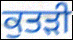
ਕੁਤੜੀ